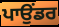
ਪਾਉਂਡਰ